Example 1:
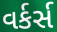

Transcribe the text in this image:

વર્કર્સ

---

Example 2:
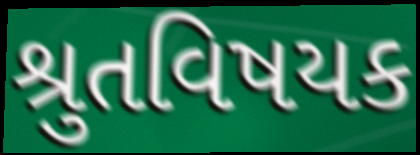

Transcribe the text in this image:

શ્રુતવિષયક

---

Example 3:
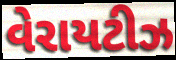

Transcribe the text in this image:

વેરાયટીઝ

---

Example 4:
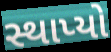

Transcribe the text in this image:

સ્થાપ્યો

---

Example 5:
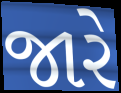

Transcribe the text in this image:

જારે